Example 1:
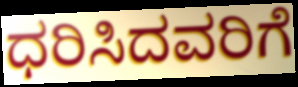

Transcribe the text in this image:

ಧರಿಸಿದವರಿಗೆ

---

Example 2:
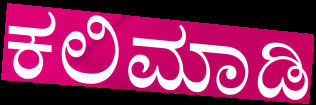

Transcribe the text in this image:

ಕಲಿಮಾಡಿ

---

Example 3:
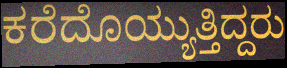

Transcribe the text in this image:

ಕರೆದೊಯ್ಯುತ್ತಿದ್ದರು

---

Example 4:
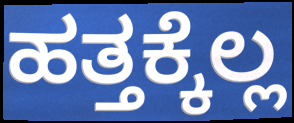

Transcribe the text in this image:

ಹತ್ತಕ್ಕೆಲ್ಲ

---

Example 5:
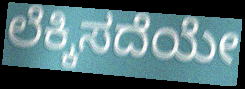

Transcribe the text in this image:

ಲೆಕ್ಕಿಸದೆಯೇ